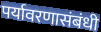
पर्यावरणासंबंधी